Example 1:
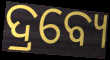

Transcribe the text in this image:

ଦ୍ରବ୍ୟେ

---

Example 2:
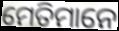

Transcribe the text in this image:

ମେତିମାନେ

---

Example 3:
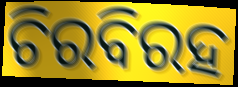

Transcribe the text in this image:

ଚିରବିରହ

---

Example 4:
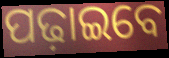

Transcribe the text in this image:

ପଢ଼ାଇବେ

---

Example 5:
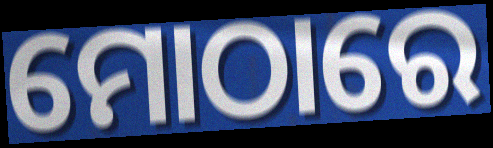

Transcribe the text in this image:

ମୋଠାରେ